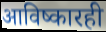
आविष्कारही